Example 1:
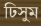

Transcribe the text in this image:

ঢিসুম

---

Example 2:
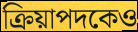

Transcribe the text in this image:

ক্রিয়াপদকেও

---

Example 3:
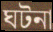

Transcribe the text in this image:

ঘটনা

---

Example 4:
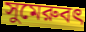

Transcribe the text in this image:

সুমেরুবৎ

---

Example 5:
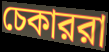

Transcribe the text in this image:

চেকাররা